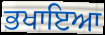
ਭਖਾਇਆ